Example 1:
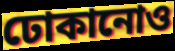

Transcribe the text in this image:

ঢোকানোও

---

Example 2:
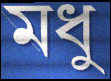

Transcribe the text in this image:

মধু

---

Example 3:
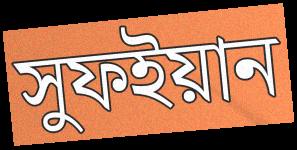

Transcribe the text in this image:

সুফইয়ান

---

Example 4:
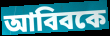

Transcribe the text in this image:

আবিবকে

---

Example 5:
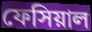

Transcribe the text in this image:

ফেসিয়াল